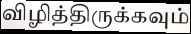
விழித்திருக்கவும்